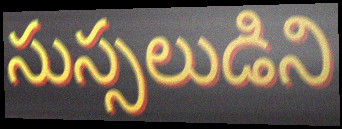
సుస్సలుడిని